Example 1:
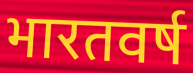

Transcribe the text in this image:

भारतवर्ष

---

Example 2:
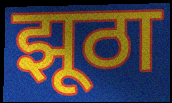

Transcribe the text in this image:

झूठा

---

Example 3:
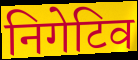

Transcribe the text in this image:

निगेटिव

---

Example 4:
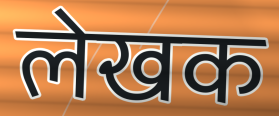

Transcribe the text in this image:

लेखक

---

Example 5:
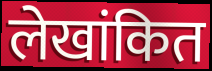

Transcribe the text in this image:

लेखांकित